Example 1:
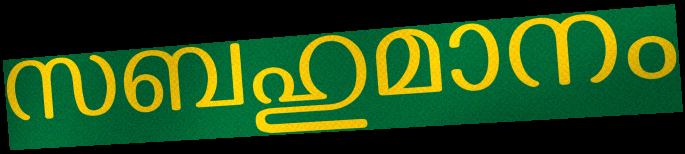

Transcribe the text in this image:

സബഹുമാനം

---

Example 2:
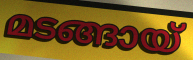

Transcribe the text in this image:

മടങ്ങായ്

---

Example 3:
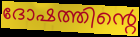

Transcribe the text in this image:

ദോഷത്തിന്റെ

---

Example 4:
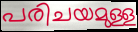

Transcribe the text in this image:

പരിചയമുള്ള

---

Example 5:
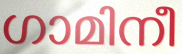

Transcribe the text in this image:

ഗാമിനീ